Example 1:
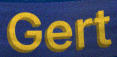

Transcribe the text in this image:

Gert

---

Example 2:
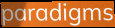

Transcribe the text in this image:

paradigms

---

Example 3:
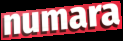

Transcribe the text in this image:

numara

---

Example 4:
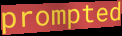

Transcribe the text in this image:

prompted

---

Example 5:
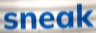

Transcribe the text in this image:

sneak